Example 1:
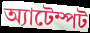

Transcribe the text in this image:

অ্যাটেম্পট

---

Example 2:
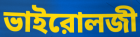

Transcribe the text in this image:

ভাইরোলজী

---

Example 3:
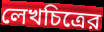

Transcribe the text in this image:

লেখচিত্রের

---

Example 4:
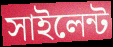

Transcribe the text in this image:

সাইলেন্ট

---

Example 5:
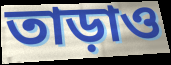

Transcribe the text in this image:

তাড়াও